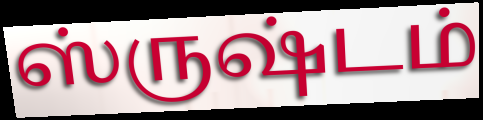
ஸ்ருஷ்டம்